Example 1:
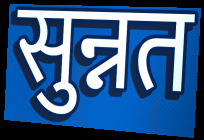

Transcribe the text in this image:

सुन्नत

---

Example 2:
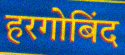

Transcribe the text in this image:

हरगोबिंद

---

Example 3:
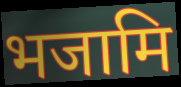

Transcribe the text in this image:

भजामि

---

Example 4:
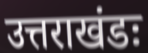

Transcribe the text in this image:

उत्तराखंडः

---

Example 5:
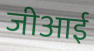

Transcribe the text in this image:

जीआई